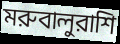
মরুবালুরাশি